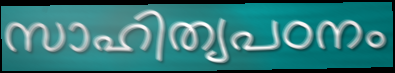
സാഹിത്യപഠനം